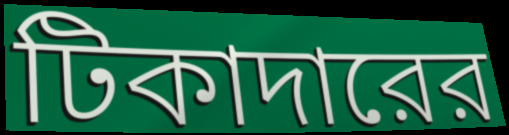
টিকাদারের